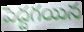
పెద్దగయిన